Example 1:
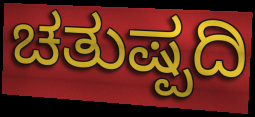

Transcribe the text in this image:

ಚತುಷ್ಪದಿ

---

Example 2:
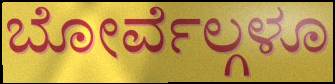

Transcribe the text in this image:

ಬೋರ್ವೆಲ್ಗಳೂ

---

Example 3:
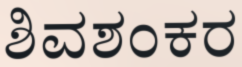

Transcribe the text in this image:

ಶಿವಶಂಕರ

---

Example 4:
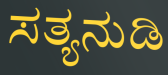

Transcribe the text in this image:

ಸತ್ಯನುಡಿ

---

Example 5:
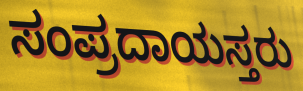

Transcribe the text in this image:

ಸಂಪ್ರದಾಯಸ್ತರು